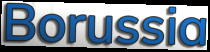
Borussia